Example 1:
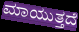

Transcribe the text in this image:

ಮಾಯುತ್ತದೆ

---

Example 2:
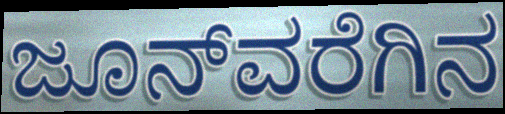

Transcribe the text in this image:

ಜೂನ್‌ವರೆಗಿನ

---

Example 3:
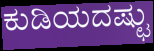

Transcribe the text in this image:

ಕುಡಿಯದಷ್ಟು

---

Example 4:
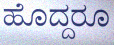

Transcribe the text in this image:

ಹೊದ್ದರೂ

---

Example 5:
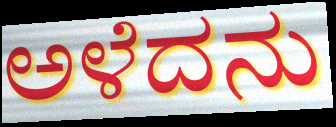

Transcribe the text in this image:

ಅಳೆದನು